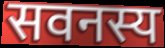
सवनस्य